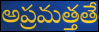
అప్రమత్తతే